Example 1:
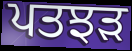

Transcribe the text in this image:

ਪਤਝੜ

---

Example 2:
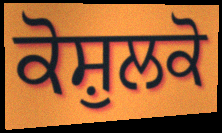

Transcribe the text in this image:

ਕੋਸ਼ੁਲਕੋ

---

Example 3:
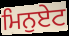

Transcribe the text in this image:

ਮਿਨੁਏਟ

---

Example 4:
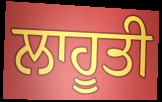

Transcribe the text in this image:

ਲਾਹੂਤੀ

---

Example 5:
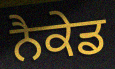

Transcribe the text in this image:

ਨੈਕੇਡ